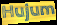
Hujum